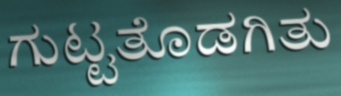
ಗುಟ್ಟತೊಡಗಿತು